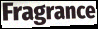
Fragrance